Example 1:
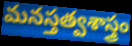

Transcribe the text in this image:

మనస్తత్వశాస్త్రం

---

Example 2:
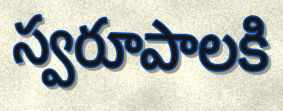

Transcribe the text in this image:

స్వరూపాలకి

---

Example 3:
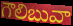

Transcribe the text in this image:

గౌలిబువా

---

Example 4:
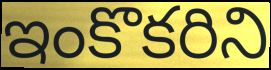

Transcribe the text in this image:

ఇంకొకరిని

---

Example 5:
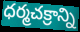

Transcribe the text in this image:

ధర్మచక్రాన్ని